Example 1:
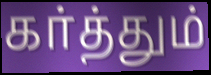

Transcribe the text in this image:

கர்த்தும்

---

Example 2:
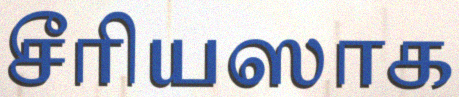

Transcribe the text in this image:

சீரியஸாக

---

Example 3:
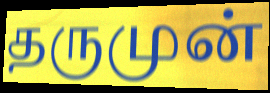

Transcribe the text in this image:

தருமுன்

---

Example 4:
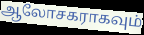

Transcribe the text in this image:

ஆலோசகராகவும்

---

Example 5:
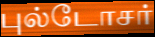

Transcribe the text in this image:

புல்டோசர்